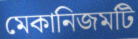
মেকানিজমটি